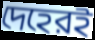
দেহেরই